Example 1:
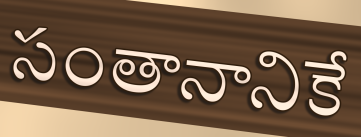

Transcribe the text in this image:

సంతానానికే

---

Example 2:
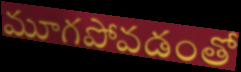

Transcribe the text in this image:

మూగపోవడంతో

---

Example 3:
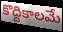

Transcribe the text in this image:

కొద్దికాలమే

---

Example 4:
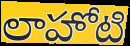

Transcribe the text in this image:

లాహోటి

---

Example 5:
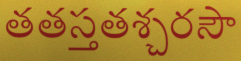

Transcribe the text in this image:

తతస్తతశ్చరసౌ